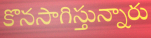
కొనసాగిస్తున్నారు